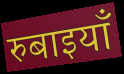
रुबाइयाँ